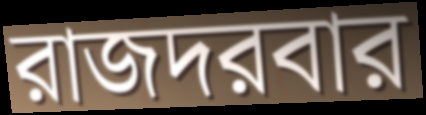
রাজদরবার